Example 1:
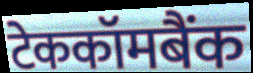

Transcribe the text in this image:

टेककॉमबैंक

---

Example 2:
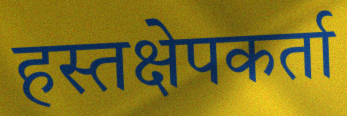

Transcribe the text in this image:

हस्तक्षेपकर्ता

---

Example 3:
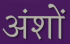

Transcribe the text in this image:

अंशों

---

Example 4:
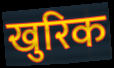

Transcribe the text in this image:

खुरिक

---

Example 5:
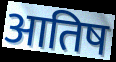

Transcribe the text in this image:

आतिष